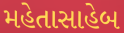
મહેતાસાહેબ